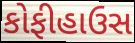
કોફીહાઉસ